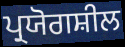
ਪ੍ਰਯੋਗਸ਼ੀਲ